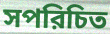
সপরিচিত